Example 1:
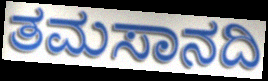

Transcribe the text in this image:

ತಮಸಾನದಿ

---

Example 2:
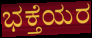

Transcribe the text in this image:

ಭಕ್ತೆಯರ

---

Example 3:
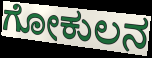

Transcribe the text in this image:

ಗೋಕುಲನ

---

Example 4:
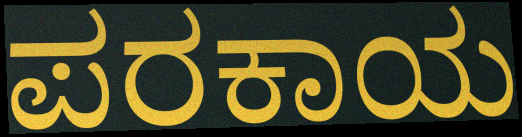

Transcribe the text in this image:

ಪರಕಾಯ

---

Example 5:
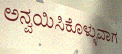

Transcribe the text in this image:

ಅನ್ವಯಿಸಿಕೊಳ್ಳುವಾಗ